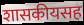
शासकीयसह